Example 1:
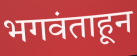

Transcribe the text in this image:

भगवंताहून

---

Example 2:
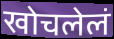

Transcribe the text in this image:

खोचलेलं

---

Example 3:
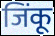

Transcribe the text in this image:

जिंकू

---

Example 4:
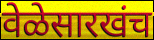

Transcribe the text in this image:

वेळेसारखंच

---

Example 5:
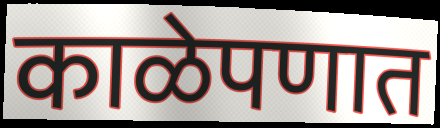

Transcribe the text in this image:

काळेपणात